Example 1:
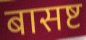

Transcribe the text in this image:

बासष्ट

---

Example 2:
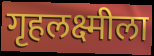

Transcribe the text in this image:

गृहलक्ष्मीला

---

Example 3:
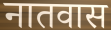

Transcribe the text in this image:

नातवास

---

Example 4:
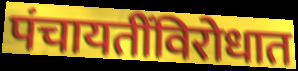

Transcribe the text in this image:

पंचायतींविरोधात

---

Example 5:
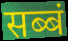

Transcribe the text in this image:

सब्बं